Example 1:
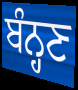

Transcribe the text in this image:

ਬੰਨ੍ਹਣ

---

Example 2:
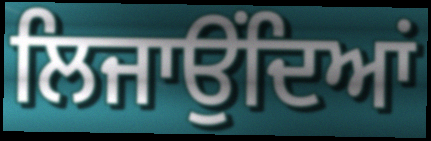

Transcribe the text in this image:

ਲਿਜਾਉਂਦਿਆਂ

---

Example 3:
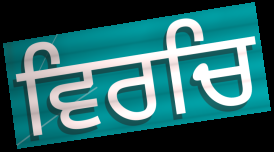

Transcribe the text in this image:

ਵਿਰਚਿ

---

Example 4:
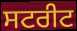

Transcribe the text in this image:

ਸਟਰੀਟ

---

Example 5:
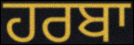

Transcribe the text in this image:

ਹਰਬਾ